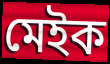
মেইক